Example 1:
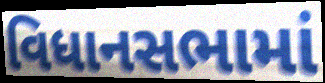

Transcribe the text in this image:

વિધાનસભામાં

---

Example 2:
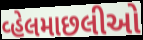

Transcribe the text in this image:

વ્હેલમાછલીઓ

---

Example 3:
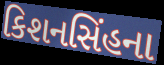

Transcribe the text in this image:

કિશનસિંહના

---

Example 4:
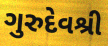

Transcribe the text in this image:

ગુરુદેવશ્રી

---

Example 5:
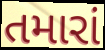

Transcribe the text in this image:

તમારાં